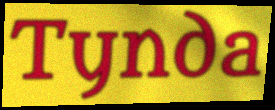
Tynda